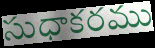
సుధాకరము